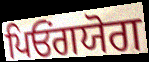
ਪਿਓਂਗਯੋਗ